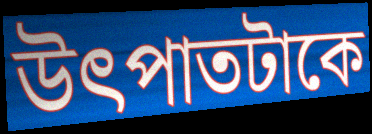
উৎপাতটাকে